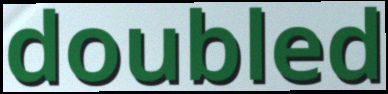
doubled